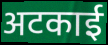
अटकाई